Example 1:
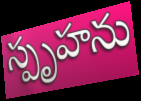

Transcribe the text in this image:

స్పృహను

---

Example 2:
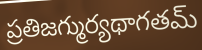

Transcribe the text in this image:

ప్రతిజగ్ముర్యథాగతమ్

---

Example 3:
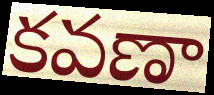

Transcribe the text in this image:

కవణా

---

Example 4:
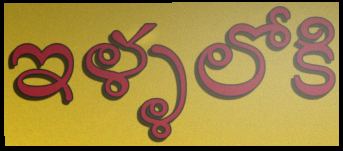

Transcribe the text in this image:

ఇళ్ళలోకి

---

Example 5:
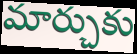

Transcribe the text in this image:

మార్చుకు